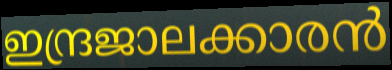
ഇന്ദ്രജാലക്കാരൻ